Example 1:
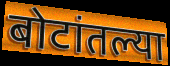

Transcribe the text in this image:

बोटांतल्या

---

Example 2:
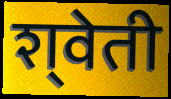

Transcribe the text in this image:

श्वेती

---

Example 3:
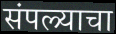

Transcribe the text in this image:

संपल्याचा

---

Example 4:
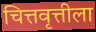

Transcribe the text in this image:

चित्तवृत्तीला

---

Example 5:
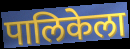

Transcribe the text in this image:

पालिकेला